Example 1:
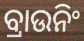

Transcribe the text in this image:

ବ୍ରାଉନିଂ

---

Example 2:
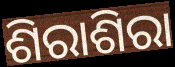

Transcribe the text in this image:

ଶିରାଶିରା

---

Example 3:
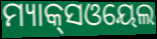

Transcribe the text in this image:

ମ୍ୟାକ୍‌ସଓୟେଲ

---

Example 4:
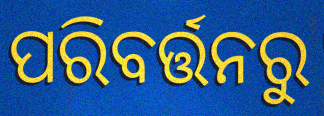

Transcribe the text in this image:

ପରିବର୍ତ୍ତନରୁ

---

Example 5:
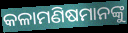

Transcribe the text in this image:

କଳାମଣିଷମାନଙ୍କୁ